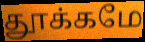
தூக்கமே